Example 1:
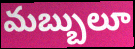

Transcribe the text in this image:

మబ్బులూ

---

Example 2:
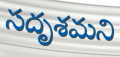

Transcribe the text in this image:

సదృశమని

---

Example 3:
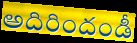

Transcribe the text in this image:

అదిరిందండీ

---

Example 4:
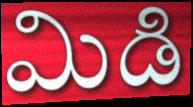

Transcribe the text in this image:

మిడి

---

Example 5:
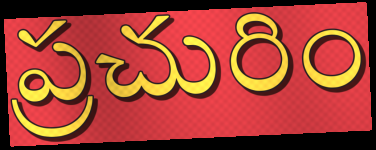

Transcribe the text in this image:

ప్రచురిం